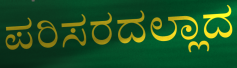
ಪರಿಸರದಲ್ಲಾದ